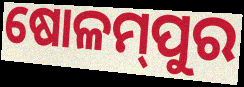
ଷୋଳମ୍‌ପୁର